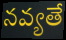
నవ్యతే